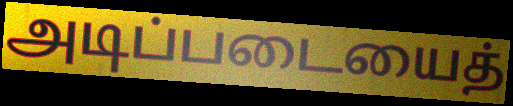
அடிப்படையைத்